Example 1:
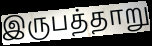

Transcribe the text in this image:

இருபத்தாறு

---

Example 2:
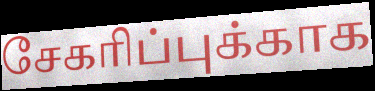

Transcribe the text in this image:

சேகரிப்புக்காக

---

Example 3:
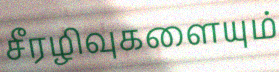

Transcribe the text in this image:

சீரழிவுகளையும்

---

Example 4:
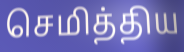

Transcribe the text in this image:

செமித்திய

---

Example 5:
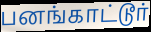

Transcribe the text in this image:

பனங்காட்டூர்